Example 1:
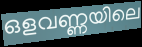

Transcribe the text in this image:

ഒളവണ്ണയിലെ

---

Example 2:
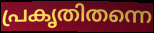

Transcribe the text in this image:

പ്രകൃതിതന്നെ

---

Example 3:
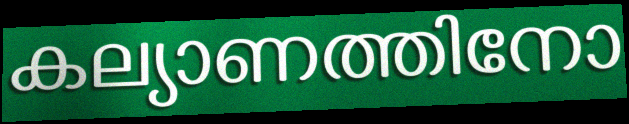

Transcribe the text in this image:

കല്യാണത്തിനോ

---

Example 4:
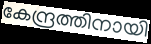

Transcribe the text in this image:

കേന്ദ്രത്തിനായി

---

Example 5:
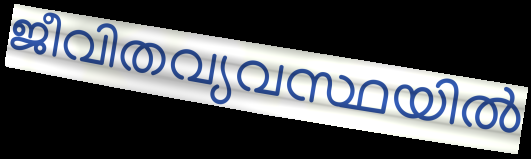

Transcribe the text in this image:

ജീവിതവ്യവസ്ഥയിൽ